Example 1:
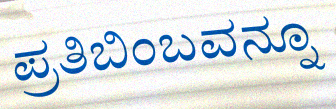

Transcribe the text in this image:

ಪ್ರತಿಬಿಂಬವನ್ನೂ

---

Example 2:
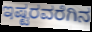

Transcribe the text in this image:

ಇಷ್ಟರವರೆಗಿನ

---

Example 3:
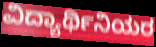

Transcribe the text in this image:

ವಿದ್ಯಾರ್ಥಿನಿಯರ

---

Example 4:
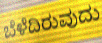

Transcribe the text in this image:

ಬೆಳೆದಿರುವುದು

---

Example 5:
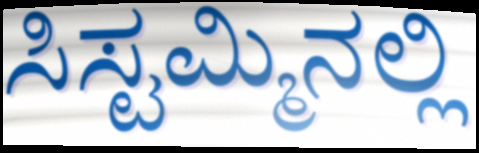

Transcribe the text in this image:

ಸಿಸ್ಟಮ್ಮಿನಲ್ಲಿ